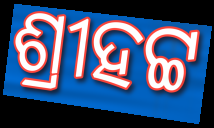
ଶ୍ରୀହଟ୍ଟ